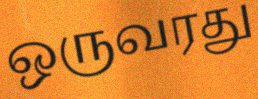
ஒருவரது